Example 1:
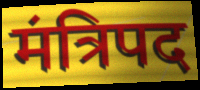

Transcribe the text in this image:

मंत्रिपद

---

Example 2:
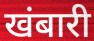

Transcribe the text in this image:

खंबारी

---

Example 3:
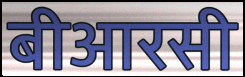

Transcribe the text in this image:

बीआरसी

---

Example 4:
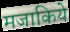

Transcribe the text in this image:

मजाकिये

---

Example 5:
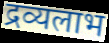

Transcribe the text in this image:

द्रव्यलाभ